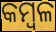
କମ୍ବଳ